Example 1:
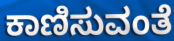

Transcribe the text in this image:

ಕಾಣಿಸುವಂತೆ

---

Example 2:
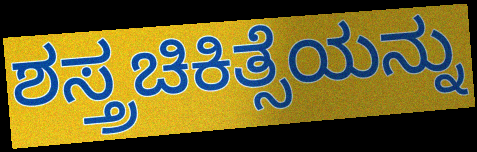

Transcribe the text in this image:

ಶಸ್ತ್ರಚಿಕಿತ್ಸೆಯನ್ನು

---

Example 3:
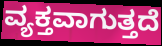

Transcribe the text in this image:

ವ್ಯಕ್ತವಾಗುತ್ತದೆ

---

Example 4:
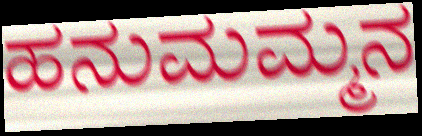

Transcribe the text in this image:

ಹನುಮಮ್ಮನ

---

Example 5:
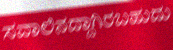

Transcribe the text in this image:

ಸವಾಲಿನದ್ದಾಗಿರಬಹುದು